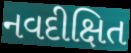
નવદીક્ષિત